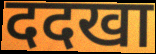
ददखा